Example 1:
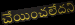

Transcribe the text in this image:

చేయించలేదని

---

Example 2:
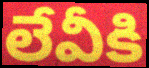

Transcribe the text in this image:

లేవీకి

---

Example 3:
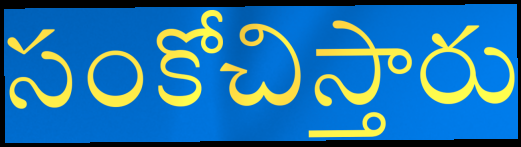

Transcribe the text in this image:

సంకోచిస్తారు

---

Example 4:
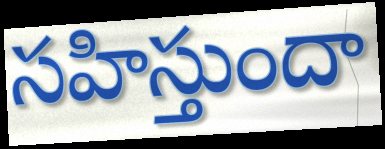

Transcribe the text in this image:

సహిస్తుందా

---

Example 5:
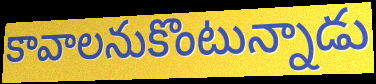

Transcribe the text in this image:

కావాలనుకొంటున్నాడు